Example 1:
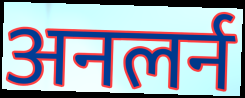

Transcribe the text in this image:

अनलर्न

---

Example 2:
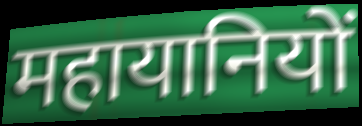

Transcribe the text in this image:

महायानियों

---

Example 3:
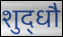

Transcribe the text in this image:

शुद्धौ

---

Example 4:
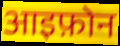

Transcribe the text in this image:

आइफ़ोन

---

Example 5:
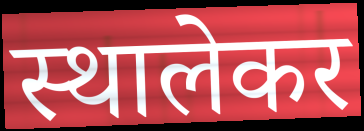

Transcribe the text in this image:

स्थालेकर